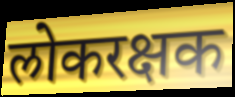
लोकरक्षक